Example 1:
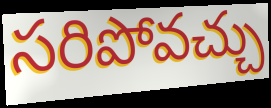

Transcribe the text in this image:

సరిపోవచ్చు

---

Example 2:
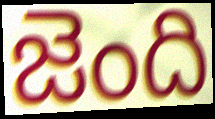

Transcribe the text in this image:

జెంది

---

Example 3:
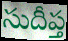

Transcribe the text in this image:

సుదీప్త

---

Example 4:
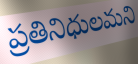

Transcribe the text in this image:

ప్రతినిధులమని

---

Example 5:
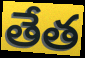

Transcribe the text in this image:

తేత